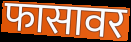
फासावर